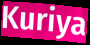
Kuriya